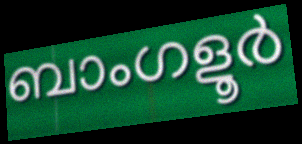
ബാംഗളൂർ